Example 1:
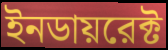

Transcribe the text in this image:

ইনডায়রেক্ট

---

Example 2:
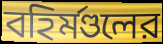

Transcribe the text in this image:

বহির্মণ্ডলের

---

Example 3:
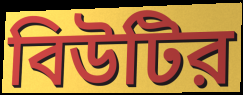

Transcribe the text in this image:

বিউটির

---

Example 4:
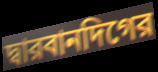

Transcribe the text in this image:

দ্বারবানদিগের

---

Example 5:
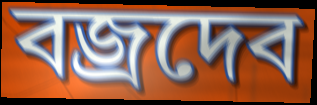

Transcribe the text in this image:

বজ্রদেব